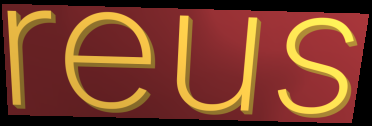
reus